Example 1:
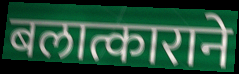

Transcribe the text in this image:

बलात्काराने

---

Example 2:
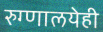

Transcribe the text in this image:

रुग्णालयेही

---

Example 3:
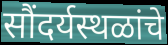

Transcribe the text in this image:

सौंदर्यस्थळांचे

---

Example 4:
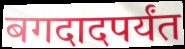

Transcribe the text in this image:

बगदादपर्यंत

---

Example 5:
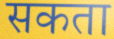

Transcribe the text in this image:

सकता